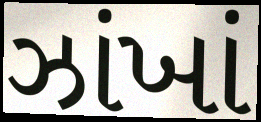
ઝાંખાં